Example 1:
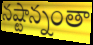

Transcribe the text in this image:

నష్టాన్నంతా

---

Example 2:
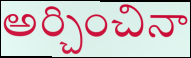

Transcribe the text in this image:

అర్చించినా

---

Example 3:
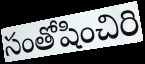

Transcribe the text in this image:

సంతోషించిరి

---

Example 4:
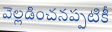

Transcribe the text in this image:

వెల్లడించనప్పటికీ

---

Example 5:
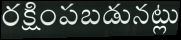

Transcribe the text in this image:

రక్షింపబడునట్లు